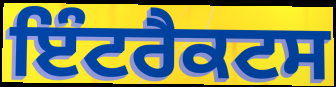
ਇੰਟਰੈਕਟਸ